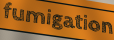
fumigation